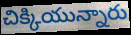
చిక్కియున్నారు